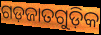
ଗଡ଼ଜାତଗୁଡ଼ିକ